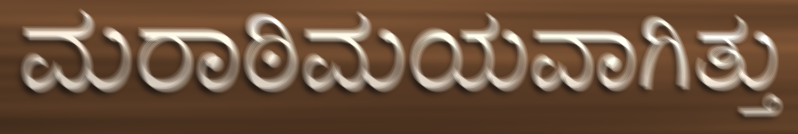
ಮರಾಠಿಮಯವಾಗಿತ್ತು